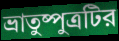
ভ্রাতুষ্পুত্রটির